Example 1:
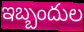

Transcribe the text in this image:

ఇబ్బందుల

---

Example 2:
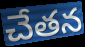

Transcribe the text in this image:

చేతన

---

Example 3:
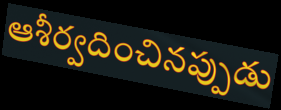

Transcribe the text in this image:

ఆశీర్వదించినప్పుడు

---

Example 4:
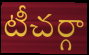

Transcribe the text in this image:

టీచర్గా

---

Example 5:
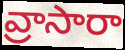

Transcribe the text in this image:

వ్రాసారా